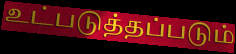
உட்படுத்தப்படும்